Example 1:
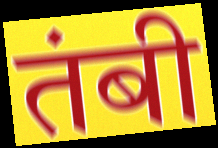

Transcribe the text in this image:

तंबी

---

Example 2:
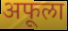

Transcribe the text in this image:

अफूला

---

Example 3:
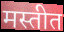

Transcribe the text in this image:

मस्तीत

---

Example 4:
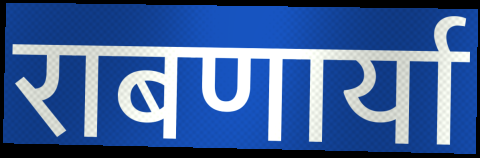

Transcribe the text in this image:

राबणार्या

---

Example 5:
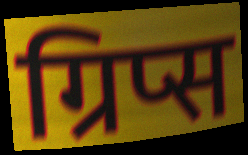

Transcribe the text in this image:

ग्रिप्स